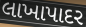
લાખાપાદર